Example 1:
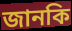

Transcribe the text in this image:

জানকি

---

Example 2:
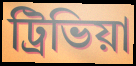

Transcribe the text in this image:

ট্রিভিয়া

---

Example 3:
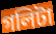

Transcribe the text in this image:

গলিটা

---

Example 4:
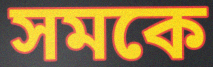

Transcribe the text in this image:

সমকে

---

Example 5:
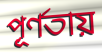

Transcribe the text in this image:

পূর্ণতায়